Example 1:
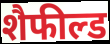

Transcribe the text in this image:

शैफील्ड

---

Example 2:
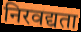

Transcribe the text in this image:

निरवद्यता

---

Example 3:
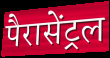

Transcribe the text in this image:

पैरासेंट्रल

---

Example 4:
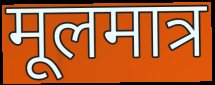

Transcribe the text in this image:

मूलमात्र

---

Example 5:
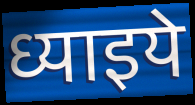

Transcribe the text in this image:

ध्याइये